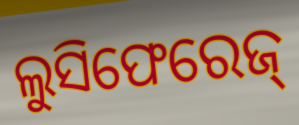
ଲୁସିଫେରେଜ୍